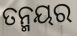
ତନ୍ମୟର